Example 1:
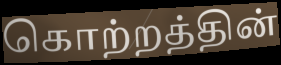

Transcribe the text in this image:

கொற்றத்தின்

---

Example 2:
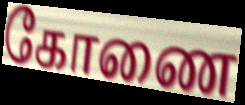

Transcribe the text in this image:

கோணை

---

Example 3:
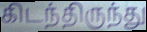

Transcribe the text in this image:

கிடந்திருந்து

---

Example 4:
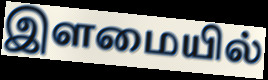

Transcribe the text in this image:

இளமையில்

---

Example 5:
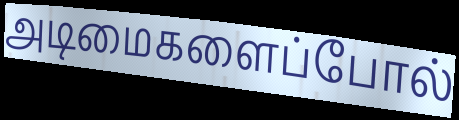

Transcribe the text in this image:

அடிமைகளைப்போல்